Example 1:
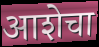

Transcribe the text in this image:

आशेचा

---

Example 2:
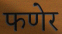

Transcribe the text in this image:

फणेर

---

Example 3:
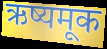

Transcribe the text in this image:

ऋष्यमूक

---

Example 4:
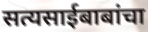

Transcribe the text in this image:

सत्यसाईबाबांचा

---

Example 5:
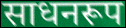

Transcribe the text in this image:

साधनरूप